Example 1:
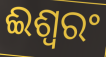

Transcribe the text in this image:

ଈଶ୍ୱରଂ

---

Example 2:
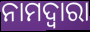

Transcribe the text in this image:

ନାମଦ୍ଵାରା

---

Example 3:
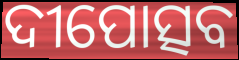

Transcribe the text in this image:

ଦୀପୋତ୍ସବ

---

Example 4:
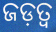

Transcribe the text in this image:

ଜଡ଼ତ୍ଵ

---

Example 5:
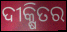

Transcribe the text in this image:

ଦୀକ୍ଷିତର